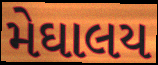
મેઘાલય